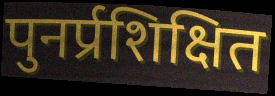
पुनर्प्रशिक्षित